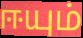
ஈயும்